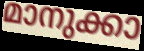
മാനുക്കാ